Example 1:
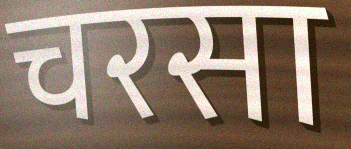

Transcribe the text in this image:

चरसा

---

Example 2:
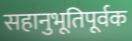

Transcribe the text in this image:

सहानुभूतिपूर्वक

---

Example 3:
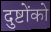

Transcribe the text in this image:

दुष्टोंको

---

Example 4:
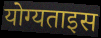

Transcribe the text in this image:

योग्यताइस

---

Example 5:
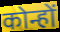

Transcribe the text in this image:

कोन्हों